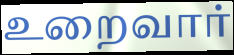
உறைவார்